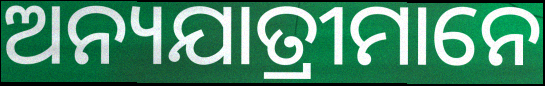
ଅନ୍ୟଯାତ୍ରୀମାନେ